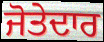
ਜੋਤੇਦਾਰ